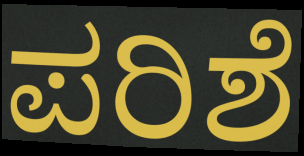
ಪರಿಶೆ